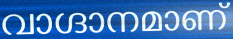
വാഗ്ദാനമാണ്